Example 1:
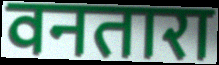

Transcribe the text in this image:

वनतारा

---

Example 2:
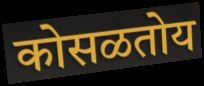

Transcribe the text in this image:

कोसळतोय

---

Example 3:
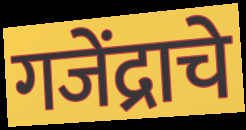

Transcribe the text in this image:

गजेंद्राचे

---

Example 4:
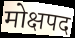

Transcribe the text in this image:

मोक्षपद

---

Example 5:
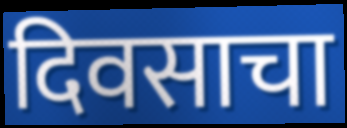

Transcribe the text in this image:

दिवसाचा